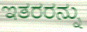
ಇತರರನ್ನು